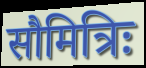
सौमित्रिः